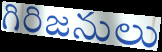
గిరిజనులు